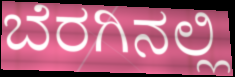
ಬೆರಗಿನಲ್ಲಿ